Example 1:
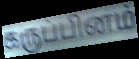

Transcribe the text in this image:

கருப்பினம்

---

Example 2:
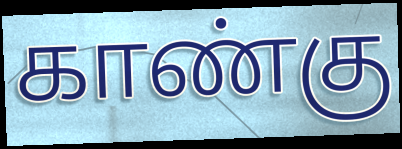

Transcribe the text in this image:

காண்கு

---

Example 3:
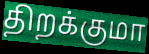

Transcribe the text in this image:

திறக்குமா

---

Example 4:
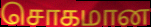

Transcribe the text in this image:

சொகமான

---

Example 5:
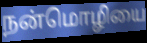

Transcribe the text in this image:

நன்மொழியை